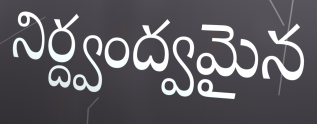
నిర్ద్వంద్వమైన